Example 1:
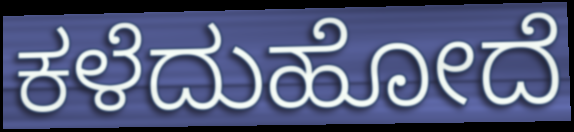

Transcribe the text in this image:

ಕಳೆದುಹೋದೆ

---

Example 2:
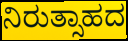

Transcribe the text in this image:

ನಿರುತ್ಸಾಹದ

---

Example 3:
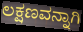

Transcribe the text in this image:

ಲಕ್ಷಣವನ್ನಾಗಿ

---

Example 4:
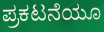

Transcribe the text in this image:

ಪ್ರಕಟನೆಯೂ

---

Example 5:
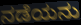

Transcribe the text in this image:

ನಡೆಯನು